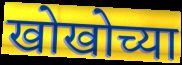
खोखोच्या